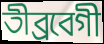
তীব্ৰবেগী